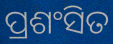
ପ୍ରଶଂସିତ